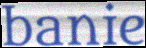
banie